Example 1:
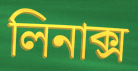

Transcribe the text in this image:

লিনাক্স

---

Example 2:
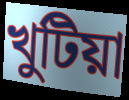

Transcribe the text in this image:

খুটিয়া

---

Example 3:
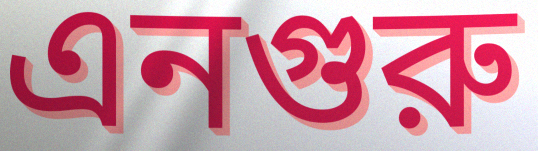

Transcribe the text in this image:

এনগুরু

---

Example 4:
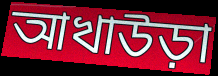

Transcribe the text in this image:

আখাউড়া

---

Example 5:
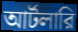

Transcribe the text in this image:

আর্টলারি